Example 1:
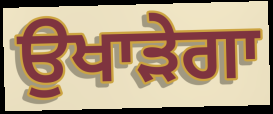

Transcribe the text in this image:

ਉਖਾੜੇਗਾ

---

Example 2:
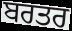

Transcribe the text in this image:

ਬਰਤਰ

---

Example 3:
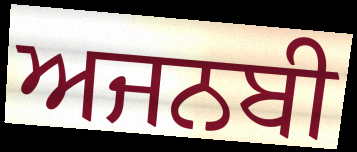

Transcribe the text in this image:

ਅਜਨਬੀ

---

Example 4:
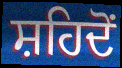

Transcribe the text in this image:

ਸ਼ਹਿਦੋਂ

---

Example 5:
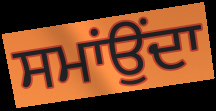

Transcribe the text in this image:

ਸਮਾਂਉਂਦਾ